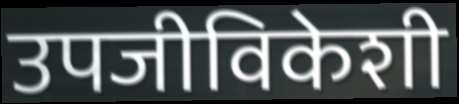
उपजीविकेशी